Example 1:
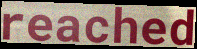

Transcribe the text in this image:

reached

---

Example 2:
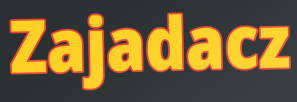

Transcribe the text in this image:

Zajadacz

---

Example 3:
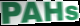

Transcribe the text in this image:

PAHs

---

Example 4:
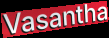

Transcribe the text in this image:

Vasantha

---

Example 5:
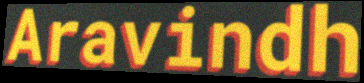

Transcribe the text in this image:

Aravindh